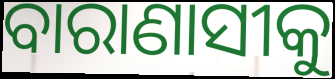
ବାରାଣାସୀକୁ